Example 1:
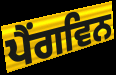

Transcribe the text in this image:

ਪੈਂਗਵਿਨ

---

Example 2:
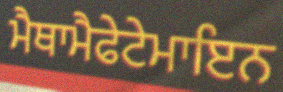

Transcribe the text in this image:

ਮੈਥਾਮੈਫੇਟੇਮਾਇਨ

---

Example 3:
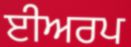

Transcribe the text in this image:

ਈਅਰਪ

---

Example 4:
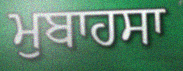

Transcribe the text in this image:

ਮੁਬਾਹਸਾ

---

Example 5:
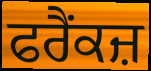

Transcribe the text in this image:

ਫਰੈਂਕਜ਼